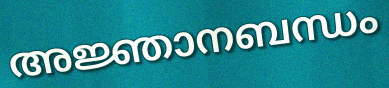
അജ്ഞാനബന്ധം